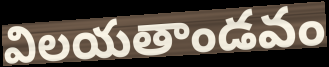
విలయతాండవం